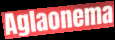
Aglaonema